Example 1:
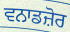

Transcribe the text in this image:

ਵਨਾਡਜ਼ੋਰ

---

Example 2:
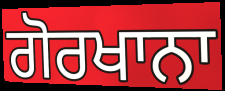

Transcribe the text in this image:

ਗੋਰਖਾਨਾ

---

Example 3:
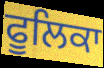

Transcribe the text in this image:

ਫੂਲਿਕਾ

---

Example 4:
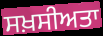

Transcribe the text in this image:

ਸਖ਼ਸੀਅਤਾ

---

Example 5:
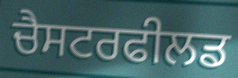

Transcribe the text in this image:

ਚੈਸਟਰਫੀਲਡ